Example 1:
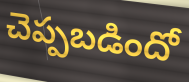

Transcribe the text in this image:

చెప్పబడిందో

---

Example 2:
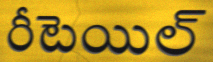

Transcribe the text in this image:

రీటెయిల్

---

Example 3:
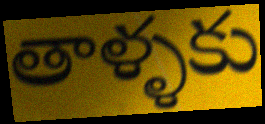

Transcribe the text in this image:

తాళ్ళకు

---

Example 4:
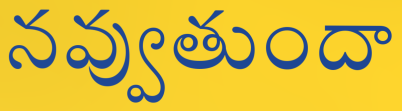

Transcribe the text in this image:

నవ్వుతుందా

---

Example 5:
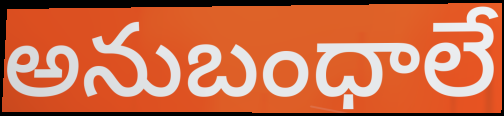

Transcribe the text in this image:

అనుబంధాలే